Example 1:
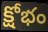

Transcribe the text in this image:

క్షోభం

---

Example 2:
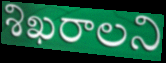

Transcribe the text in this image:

శిఖరాలని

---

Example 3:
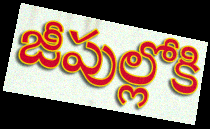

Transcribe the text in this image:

జీపుల్లోకి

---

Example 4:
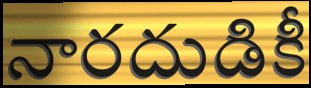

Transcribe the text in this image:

నారదుడికీ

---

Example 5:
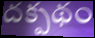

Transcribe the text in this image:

దక్పథం